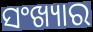
ସଂଖ୍ୟାର